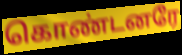
கொண்டனரே